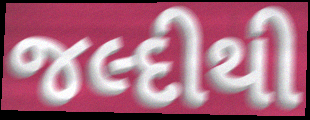
જલ્દીથી